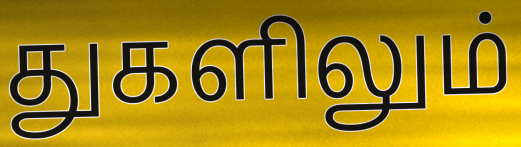
துகளிலும்